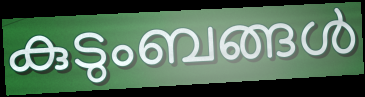
കുടുംബങ്ങൾ